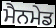
ਮੈਨਮੇਡ